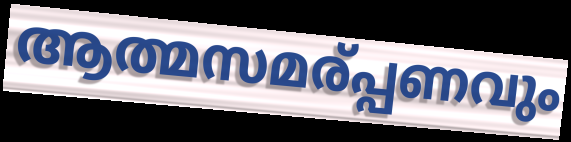
ആത്മസമര്പ്പണവും